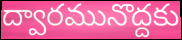
ద్వారమునొద్దకు